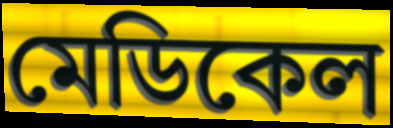
মেডিকেল